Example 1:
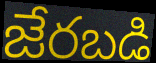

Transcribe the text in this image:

జేరబడి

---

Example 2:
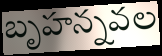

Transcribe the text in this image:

బృహన్నవల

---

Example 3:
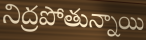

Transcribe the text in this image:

నిద్రపోతున్నాయి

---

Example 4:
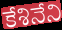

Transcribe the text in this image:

కేశినేని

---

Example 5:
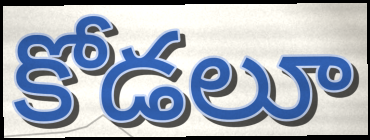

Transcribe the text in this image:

కోడలూ